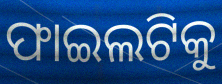
ଫାଇଲଟିକୁ